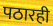
पठारही